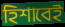
হিশাবেই